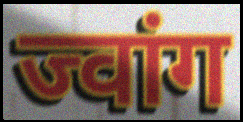
ज्वांग